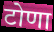
टोणा